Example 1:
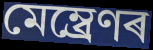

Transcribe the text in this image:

মেম্ব্ৰেণৰ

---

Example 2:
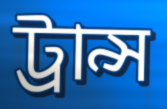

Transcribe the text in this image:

ট্ৰান্স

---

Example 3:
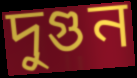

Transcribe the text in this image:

দুগুন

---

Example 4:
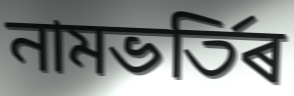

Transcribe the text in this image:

নামভৰ্তিৰ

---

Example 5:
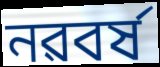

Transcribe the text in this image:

নৱবৰ্ষ